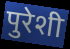
पुरेशी